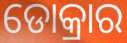
ଡୋକ୍ରାର